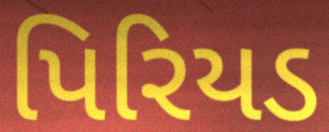
પિરિયડ